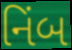
નિંબ